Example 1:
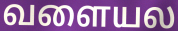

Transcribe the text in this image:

வளையல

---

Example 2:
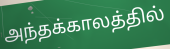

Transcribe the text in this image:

அந்தக்காலத்தில்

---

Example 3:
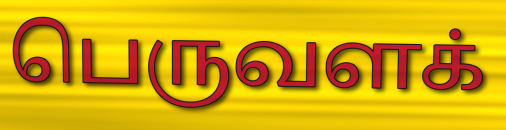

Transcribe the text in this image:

பெருவளக்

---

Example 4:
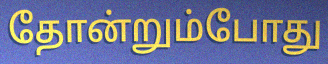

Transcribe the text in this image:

தோன்றும்போது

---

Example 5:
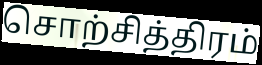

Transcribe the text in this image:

சொற்சித்திரம்